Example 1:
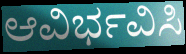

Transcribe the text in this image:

ಆವಿರ್ಭವಿಸಿ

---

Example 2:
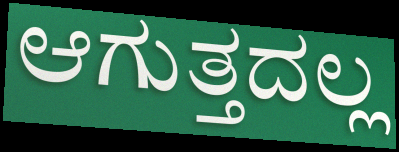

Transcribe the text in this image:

ಆಗುತ್ತದಲ್ಲ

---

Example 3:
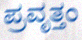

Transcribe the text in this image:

ಪ್ರವೃತ್ತಂ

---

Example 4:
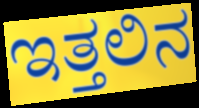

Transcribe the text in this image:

ಇತ್ತಲಿನ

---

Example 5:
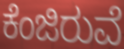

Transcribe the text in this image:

ಕೆಂಜಿರುವೆ